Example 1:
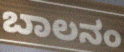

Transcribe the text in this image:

ಬಾಲನಂ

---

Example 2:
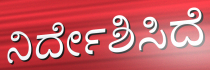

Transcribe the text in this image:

ನಿರ್ದೇಶಿಸಿದೆ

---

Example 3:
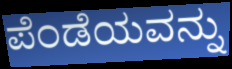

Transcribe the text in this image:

ಪೆಂಡೆಯವನ್ನು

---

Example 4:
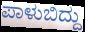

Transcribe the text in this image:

ಪಾಳುಬಿದ್ದು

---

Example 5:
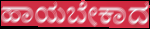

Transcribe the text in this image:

ಹಾಯಬೇಕಾದ